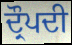
ਦ੍ਰੌਪਦੀ